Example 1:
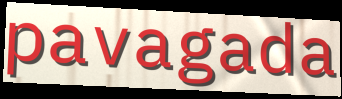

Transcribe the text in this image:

pavagada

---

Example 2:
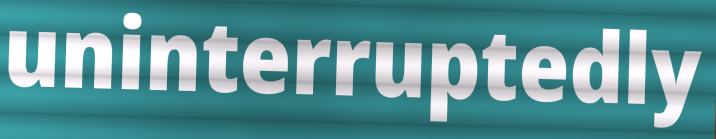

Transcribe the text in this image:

uninterruptedly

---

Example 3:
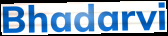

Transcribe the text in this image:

Bhadarvi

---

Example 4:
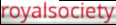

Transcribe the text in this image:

royalsociety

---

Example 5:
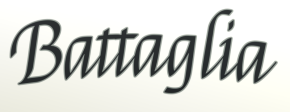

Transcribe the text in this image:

Battaglia